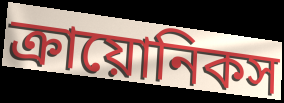
ক্রায়োনিকস